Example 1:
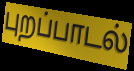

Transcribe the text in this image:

புறப்பாடல்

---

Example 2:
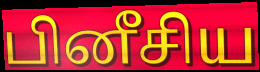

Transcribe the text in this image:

பினீசிய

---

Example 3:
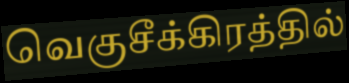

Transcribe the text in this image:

வெகுசீக்கிரத்தில்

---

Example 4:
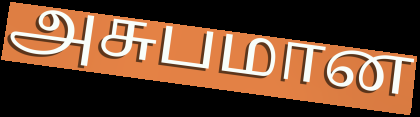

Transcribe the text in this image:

அசுபமான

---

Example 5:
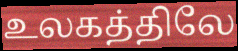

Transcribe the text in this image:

உலகத்திலே